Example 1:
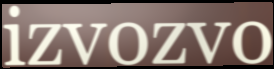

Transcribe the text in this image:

izvozvo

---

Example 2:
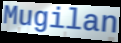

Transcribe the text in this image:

Mugilan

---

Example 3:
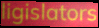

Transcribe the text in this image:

ligislators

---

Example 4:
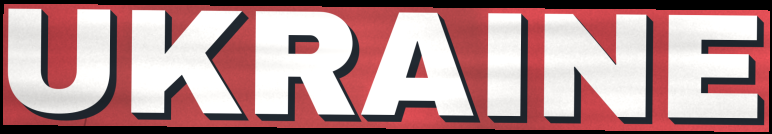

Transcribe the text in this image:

UKRAINE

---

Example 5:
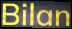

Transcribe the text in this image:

Bilan